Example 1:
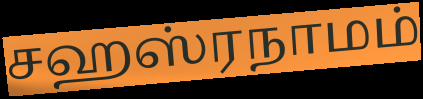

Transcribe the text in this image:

சஹஸ்ரநாமம்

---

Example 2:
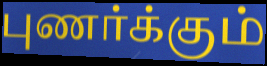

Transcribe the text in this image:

புணர்க்கும்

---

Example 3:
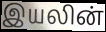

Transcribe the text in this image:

இயலின்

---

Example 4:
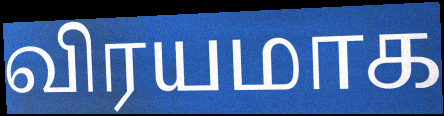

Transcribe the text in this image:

விரயமாக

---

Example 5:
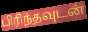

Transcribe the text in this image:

பிரிந்தவுடன்